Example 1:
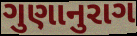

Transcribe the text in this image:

ગુણાનુરાગ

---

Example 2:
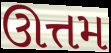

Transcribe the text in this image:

ઊત્તમ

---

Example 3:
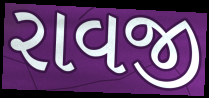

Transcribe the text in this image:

રાવજી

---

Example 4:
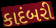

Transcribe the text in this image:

કાદંબરી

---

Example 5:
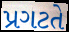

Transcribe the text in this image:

પ્રગટતે